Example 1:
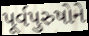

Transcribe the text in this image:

પૂર્વપુરુષોને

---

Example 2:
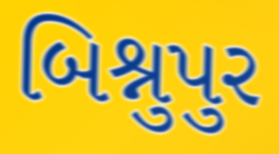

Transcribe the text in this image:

બિશ્નુપુર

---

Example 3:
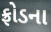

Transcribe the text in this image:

ફ્રોડના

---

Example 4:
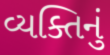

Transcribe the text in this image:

વ્યક્તિનું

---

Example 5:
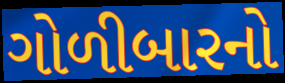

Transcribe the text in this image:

ગોળીબારનો